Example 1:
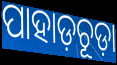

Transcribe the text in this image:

ପାହାଡ଼ଚୂଡ଼ା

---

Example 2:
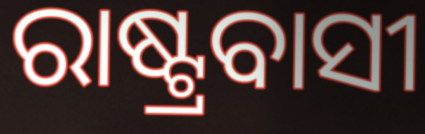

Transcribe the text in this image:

ରାଷ୍ଟ୍ରବାସୀ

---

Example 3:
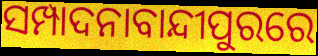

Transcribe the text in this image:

ସମ୍ପାଦନାବାନ୍ଦୀପୁରରେ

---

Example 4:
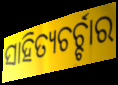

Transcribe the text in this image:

ସାହିତ୍ୟଚର୍ଚ୍ଚାର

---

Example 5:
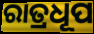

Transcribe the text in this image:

ରାତ୍ରଧୂପ